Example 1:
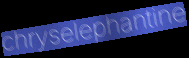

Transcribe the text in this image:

chryselephantine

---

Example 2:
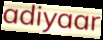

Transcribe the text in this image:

adiyaar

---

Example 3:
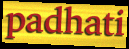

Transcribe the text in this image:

padhati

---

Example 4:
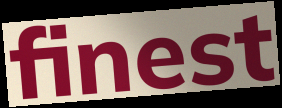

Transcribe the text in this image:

finest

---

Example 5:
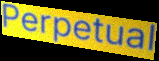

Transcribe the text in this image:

Perpetual